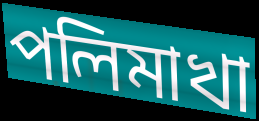
পলিমাখা